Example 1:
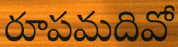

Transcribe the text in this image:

రూపమదివో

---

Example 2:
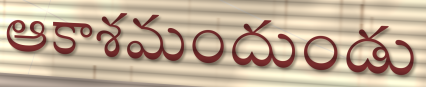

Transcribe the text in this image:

ఆకాశమందుండు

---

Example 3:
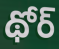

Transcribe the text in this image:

థోర్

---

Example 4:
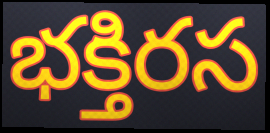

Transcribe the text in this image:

భక్తిరస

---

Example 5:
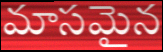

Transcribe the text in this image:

మాసమైన